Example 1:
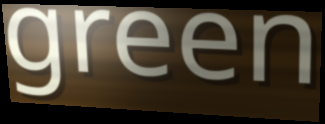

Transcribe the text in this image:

green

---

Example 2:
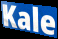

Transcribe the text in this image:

Kale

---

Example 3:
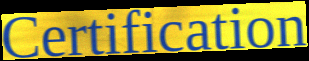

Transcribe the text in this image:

Certification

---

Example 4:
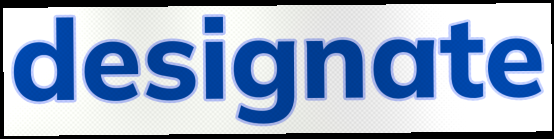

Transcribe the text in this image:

designate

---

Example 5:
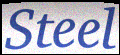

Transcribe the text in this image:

Steel